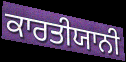
ਕਾਰਤੀਯਾਨੀ